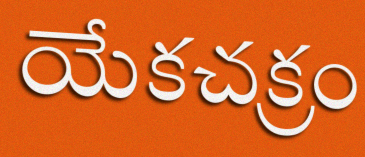
యేకచక్రం